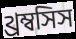
থ্রম্বসিস